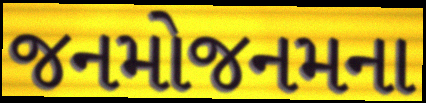
જનમોજનમના